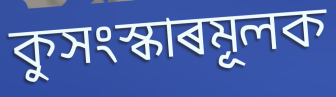
কুসংস্কাৰমূলক